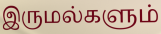
இருமல்களும்